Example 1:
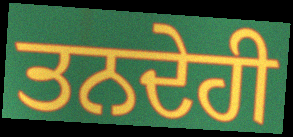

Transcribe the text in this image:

ਤਨਦੇਹੀ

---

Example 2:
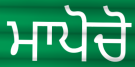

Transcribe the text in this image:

ਮਾਪੋਚੋ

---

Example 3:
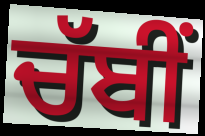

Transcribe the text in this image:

ਚੱਬੀਂ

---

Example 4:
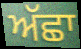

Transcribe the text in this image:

ਅੱਛਾ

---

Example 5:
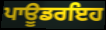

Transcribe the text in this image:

ਪਾਊਡਰਇਹ